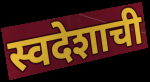
स्वदेशाची